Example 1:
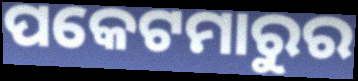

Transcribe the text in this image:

ପକେଟମାରୁର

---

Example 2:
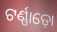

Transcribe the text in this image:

ଟର୍ଣ୍ଣାଡ଼ୋ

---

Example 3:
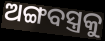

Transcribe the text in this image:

ଅଙ୍ଗବସ୍ତ୍ରକୁ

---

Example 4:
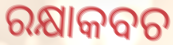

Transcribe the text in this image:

ରକ୍ଷାକବଚ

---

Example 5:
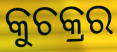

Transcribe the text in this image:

କୁଚକ୍ରର